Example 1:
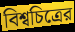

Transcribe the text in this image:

বিশ্বচিত্রের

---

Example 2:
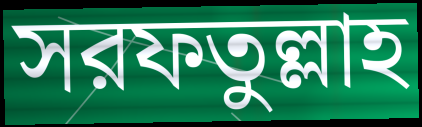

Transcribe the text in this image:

সরফতুল্লাহ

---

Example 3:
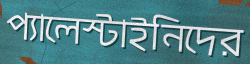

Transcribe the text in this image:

প্যালেস্টাইনিদের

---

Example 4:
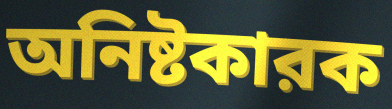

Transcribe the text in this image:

অনিষ্টকারক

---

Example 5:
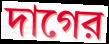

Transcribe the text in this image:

দাগের